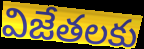
విజేతలకు